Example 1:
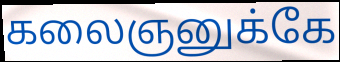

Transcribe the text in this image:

கலைஞனுக்கே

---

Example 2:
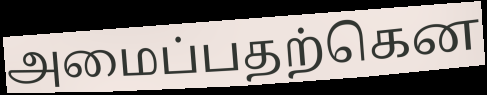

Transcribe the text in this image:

அமைப்பதற்கென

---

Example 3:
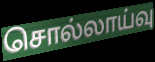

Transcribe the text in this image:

சொல்லாய்வு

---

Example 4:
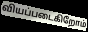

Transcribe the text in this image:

வியப்படைகிறோம்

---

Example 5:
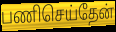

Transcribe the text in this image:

பணிசெய்தேன்